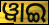
ୱାଇ